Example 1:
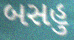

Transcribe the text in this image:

બસહુ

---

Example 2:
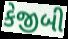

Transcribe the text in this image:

કેજીબી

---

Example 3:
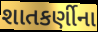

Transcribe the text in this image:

શાતકર્ણીના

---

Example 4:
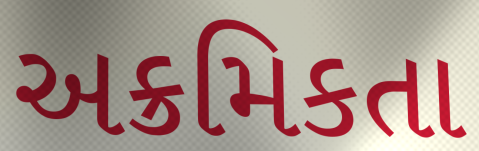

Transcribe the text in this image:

અક્રમિકતા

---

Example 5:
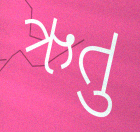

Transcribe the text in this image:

ઋતુ